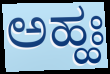
ಅಹ್ಹಃ